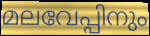
മലവേപ്പിനും